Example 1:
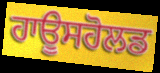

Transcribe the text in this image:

ਹਾਊਸਹੋਲਡ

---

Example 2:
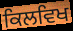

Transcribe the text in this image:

ਕਿਲਵਿਖ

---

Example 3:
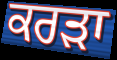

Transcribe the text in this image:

ਕਰੜਾ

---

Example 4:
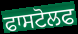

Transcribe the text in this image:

ਫਾਸਟੋਲਫ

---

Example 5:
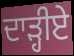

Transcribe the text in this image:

ਦਾੜ੍ਹੀਏ